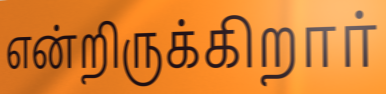
என்றிருக்கிறார்